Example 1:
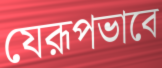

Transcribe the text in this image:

যেরূপভাবে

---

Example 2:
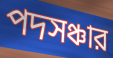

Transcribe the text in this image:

পদসঞ্চার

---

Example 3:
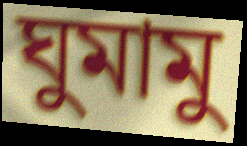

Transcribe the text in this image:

ঘুমামু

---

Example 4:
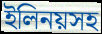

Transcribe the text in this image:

ইলিনয়সহ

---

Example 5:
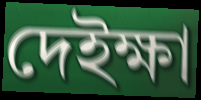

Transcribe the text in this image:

দেইক্ষা